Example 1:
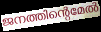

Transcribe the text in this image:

ജനത്തിന്റെമേൽ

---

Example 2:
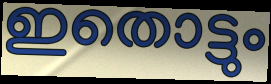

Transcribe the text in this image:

ഇതൊട്ടും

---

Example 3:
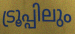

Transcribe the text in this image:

ട്രൂപ്പിലും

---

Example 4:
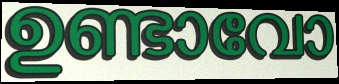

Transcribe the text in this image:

ഉണ്ടാവോ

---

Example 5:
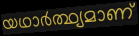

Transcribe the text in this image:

യഥാർത്ഥ്യമാണ്